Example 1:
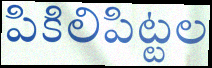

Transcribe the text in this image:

పికిలిపిట్టల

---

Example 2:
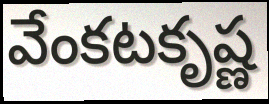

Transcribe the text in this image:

వేంకటకృష్ణ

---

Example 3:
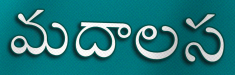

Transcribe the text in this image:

మదాలస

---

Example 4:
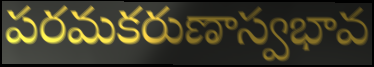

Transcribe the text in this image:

పరమకరుణాస్వభావ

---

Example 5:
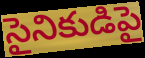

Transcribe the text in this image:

సైనికుడిపై